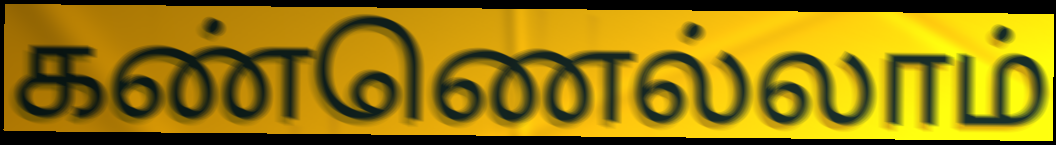
கண்ணெல்லாம்